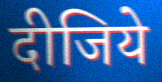
दीजिये